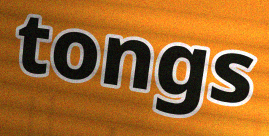
tongs